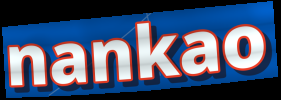
nankao